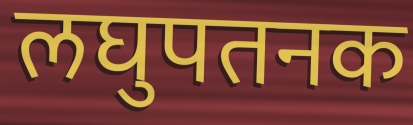
लघुपतनक